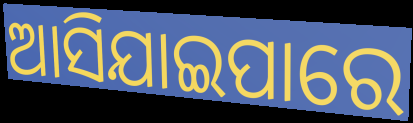
ଆସିଯାଇପାରେ